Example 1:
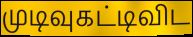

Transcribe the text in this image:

முடிவுகட்டிவிட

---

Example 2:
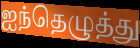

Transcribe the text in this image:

ஐந்தெழுத்து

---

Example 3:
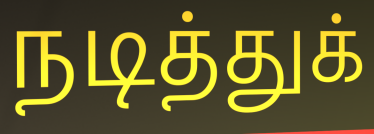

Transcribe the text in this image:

நடித்துக்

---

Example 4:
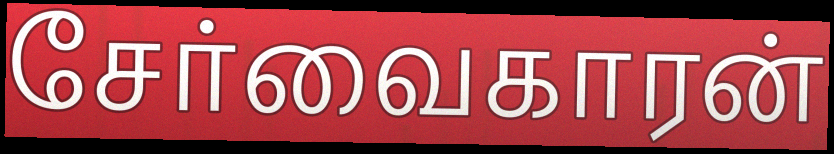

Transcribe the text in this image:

சேர்வைகாரன்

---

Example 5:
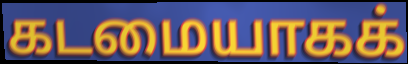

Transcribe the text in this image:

கடமையாகக்